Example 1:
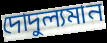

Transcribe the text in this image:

দোদুল্যমান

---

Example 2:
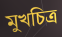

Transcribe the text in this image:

মুখচিত্র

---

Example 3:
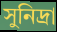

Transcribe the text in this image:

সুনিদ্রা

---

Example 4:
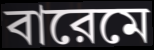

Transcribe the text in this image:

বারেমে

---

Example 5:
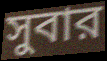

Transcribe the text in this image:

সুবার